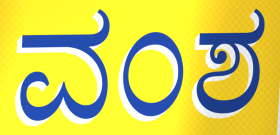
ವಂಶ